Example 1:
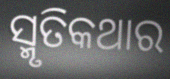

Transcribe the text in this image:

ସ୍ମୃତିକଥାର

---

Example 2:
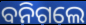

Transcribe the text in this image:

ବନିଗଲେ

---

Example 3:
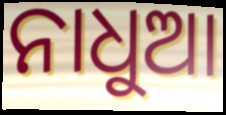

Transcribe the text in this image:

ନାଧୁଆ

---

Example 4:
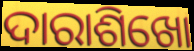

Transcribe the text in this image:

ଦାରାଶିଖୋ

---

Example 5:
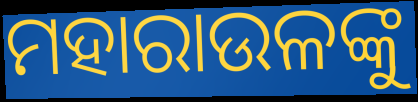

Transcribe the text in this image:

ମହାରାଉଳଙ୍କୁ